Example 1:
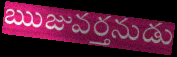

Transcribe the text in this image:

ఋజువర్తనుడు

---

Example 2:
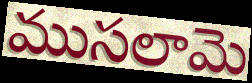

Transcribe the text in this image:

ముసలామె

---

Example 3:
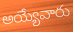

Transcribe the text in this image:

అయ్యేవారు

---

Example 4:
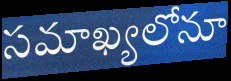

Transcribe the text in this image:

సమాఖ్యలోనూ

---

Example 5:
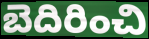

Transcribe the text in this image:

బెదిరించి